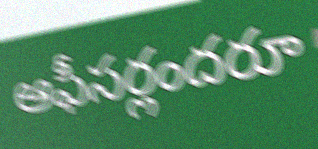
ఆఫీసర్లందరూ